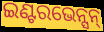
ଇଣ୍ଟରଭେନ୍ସନ୍